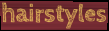
hairstyles